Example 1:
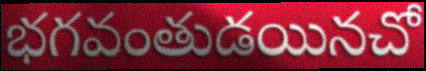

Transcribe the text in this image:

భగవంతుడయినచో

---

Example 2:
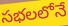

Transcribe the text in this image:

సభలలోనే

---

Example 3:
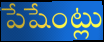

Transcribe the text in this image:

పేషేంట్లు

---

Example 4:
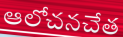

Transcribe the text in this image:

ఆలోచనచేత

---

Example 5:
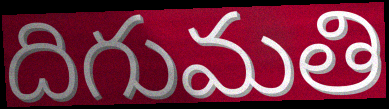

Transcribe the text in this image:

దిగుమతి